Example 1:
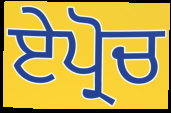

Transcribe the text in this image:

ਏਪ੍ਰੋਚ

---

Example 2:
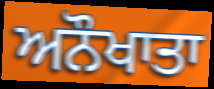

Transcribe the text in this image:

ਅਨੌਖਾਤਾ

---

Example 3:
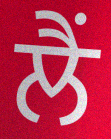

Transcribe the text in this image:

ਲੈਂ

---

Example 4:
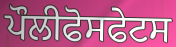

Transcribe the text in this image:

ਪੌਲੀਫੋਸਫੇਟਸ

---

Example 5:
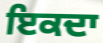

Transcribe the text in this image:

ਇਕਦਾ